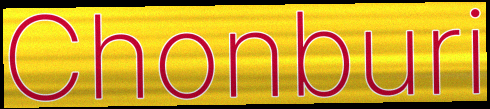
Chonburi